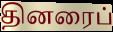
தினரைப்